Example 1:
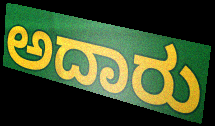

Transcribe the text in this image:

ಅದಾರು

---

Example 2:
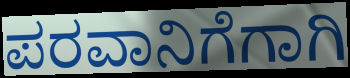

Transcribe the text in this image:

ಪರವಾನಿಗೆಗಾಗಿ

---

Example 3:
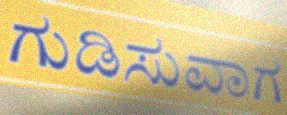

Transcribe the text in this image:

ಗುಡಿಸುವಾಗ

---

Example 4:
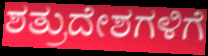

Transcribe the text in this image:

ಶತ್ರುದೇಶಗಳಿಗೆ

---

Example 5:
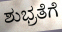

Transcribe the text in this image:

ಶುಭ್ರತೆಗೆ